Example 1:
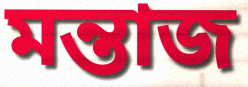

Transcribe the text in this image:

মন্তাজ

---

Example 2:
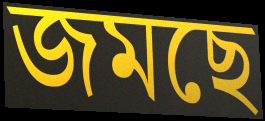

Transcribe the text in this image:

জমছে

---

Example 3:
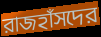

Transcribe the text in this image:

রাজহাঁসদের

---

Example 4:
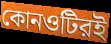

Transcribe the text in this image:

কোনওটিরই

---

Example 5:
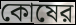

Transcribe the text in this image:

কোষের